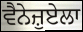
ਵੈਨੇਜ਼ੁਏਲਾ